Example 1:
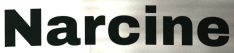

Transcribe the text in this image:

Narcine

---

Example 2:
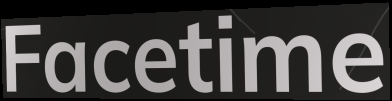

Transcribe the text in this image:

Facetime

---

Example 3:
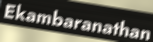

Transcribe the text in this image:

Ekambaranathan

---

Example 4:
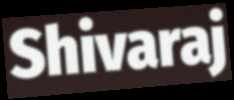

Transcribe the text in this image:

Shivaraj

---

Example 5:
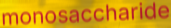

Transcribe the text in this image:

monosaccharide